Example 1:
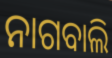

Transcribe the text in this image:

ନାଗବାଲି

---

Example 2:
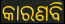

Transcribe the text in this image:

କାରଣବି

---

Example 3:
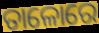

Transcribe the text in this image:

ତାଳୋରେ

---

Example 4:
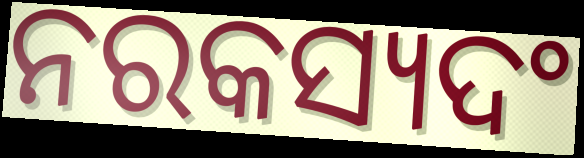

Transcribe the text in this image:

ନରକସ୍ୟଦଂ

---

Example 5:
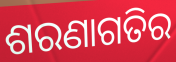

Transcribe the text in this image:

ଶରଣାଗତିର